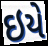
ઇયે